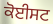
ਕੋਈਸਟ